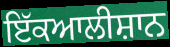
ਇੱਕਆਲੀਸ਼ਾਨ